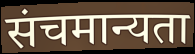
संचमान्यता